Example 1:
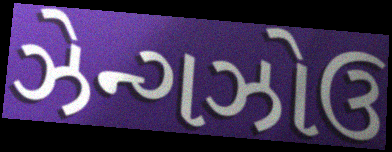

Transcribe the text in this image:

ઝેન્ગઝોઉ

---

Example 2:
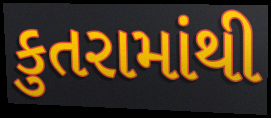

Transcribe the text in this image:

કુતરામાંથી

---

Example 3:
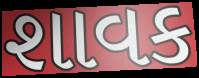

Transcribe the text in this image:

શાવક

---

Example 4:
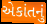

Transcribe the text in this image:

એકાંતનું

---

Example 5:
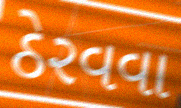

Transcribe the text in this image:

ઠેરવવા